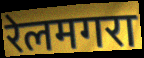
रेलमगरा